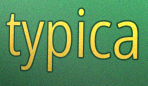
typica